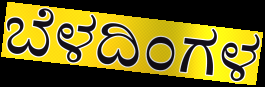
ಬೆಳದಿಂಗಳ